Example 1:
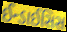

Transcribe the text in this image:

ઈન્ડાઈસિસ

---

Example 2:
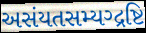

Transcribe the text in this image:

અસંયતસમ્યગ્દ્રષ્ટિ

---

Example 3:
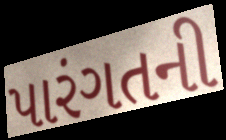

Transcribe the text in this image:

પારંગતની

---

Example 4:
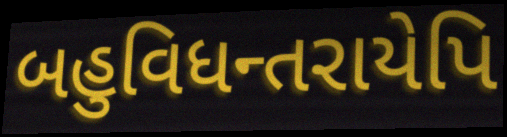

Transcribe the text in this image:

બહુવિધન્તરાયેપિ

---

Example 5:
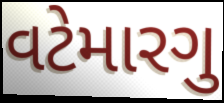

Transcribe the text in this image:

વટેમારગુ